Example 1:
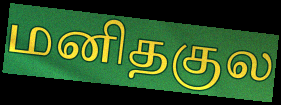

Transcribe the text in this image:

மனிதகுல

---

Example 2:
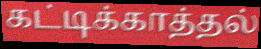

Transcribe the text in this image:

கட்டிக்காத்தல்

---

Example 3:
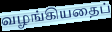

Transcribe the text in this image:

வழங்கியதைப்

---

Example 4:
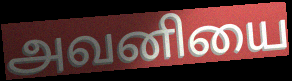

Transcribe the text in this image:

அவனியை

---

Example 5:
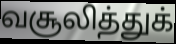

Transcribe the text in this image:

வசூலித்துக்